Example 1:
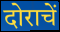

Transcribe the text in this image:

दोराचें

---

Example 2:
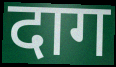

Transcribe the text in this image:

दाग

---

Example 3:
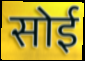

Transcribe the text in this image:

सोई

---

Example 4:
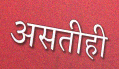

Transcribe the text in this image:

असतीही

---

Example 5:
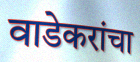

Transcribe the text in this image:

वाडेकरांचा